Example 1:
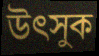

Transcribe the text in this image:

উৎসুক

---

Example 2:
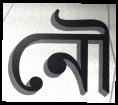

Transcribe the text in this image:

নৌ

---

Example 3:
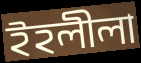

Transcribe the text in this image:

ইহলীলা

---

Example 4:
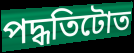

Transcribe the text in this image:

পদ্ধতিটোত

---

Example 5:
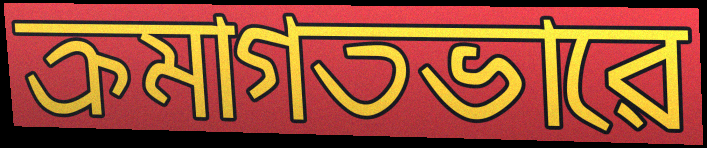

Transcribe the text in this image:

ক্ৰমাগতভাৱে